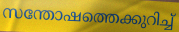
സന്തോഷത്തെക്കുറിച്ച്